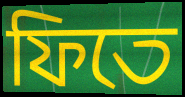
ফিতে